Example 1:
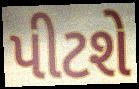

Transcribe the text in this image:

પીટશે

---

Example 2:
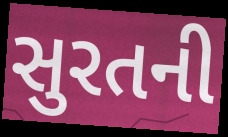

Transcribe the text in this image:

સુરતની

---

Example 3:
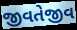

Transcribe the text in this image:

જીવતેજીવ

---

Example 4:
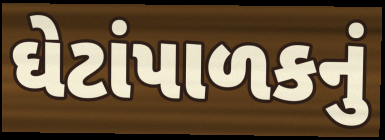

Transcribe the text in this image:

ઘેટાંપાળકનું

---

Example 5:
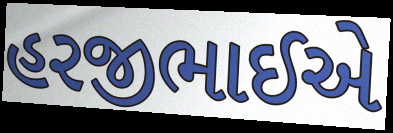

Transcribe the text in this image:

હરજીભાઈએ